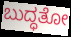
ಬುದ್ಧತೋ